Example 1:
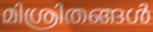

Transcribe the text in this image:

മിശ്രിതങ്ങൾ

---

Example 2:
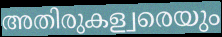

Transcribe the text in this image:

അതിരുകള്വരെയും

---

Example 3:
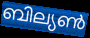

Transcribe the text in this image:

ബില്യൺ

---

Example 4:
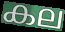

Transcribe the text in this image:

കല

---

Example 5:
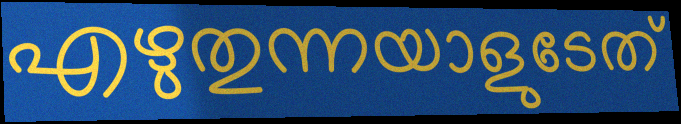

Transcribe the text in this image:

എഴുതുന്നയാളുടേത്